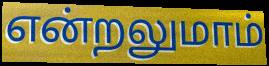
என்றலுமாம்